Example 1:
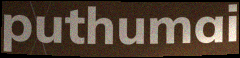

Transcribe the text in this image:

puthumai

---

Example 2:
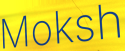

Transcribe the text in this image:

Moksh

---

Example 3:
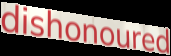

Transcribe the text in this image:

dishonoured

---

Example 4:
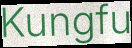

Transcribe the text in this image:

Kungfu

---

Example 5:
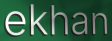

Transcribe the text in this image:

ekhan